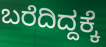
ಬರೆದಿದ್ದಕ್ಕೆ